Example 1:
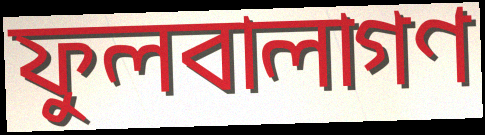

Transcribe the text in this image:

ফুলবালাগণ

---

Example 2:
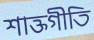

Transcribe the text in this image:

শাক্তগীতি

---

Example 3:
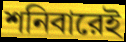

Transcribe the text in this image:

শনিবারেই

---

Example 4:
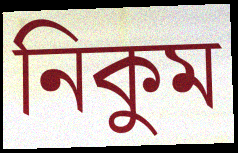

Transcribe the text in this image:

নিকুম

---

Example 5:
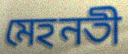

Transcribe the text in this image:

মেহনতী